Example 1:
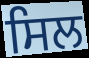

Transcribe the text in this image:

ਸਿਲ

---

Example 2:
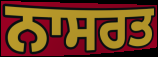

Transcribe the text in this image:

ਨਾਸਰਤ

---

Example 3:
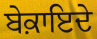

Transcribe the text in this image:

ਬੇਕ਼ਾਇਦੇ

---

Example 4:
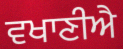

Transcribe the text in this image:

ਵਖਾਣੀਐ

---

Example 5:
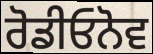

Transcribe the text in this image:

ਰੋਡੀਓਨੋਵ